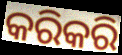
କରିକରି